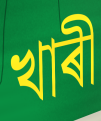
খাৰী